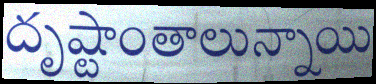
దృష్టాంతాలున్నాయి